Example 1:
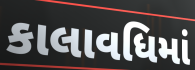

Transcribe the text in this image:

કાલાવધિમાં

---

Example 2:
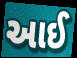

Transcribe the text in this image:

આઈ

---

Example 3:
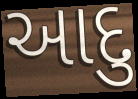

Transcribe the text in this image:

આદુ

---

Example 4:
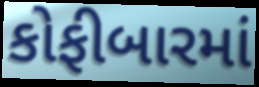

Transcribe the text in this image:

કોફીબારમાં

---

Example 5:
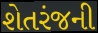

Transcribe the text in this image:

શેતરંજની